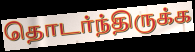
தொடர்ந்திருக்க